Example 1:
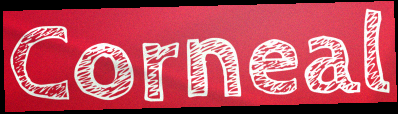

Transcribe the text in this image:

Corneal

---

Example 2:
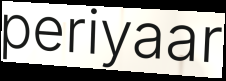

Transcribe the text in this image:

periyaar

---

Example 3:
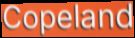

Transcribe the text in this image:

Copeland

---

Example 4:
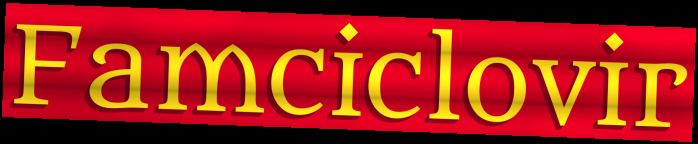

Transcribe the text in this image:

Famciclovir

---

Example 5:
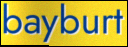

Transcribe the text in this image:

bayburt